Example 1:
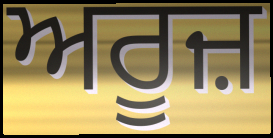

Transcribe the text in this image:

ਅਰੂਜ਼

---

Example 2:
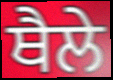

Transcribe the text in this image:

ਥੈਲੇ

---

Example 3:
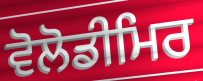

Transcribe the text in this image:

ਵੋਲੋਡੀਮਿਰ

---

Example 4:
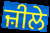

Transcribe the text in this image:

ਜ਼ੀਲੇ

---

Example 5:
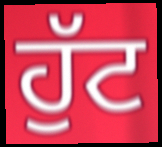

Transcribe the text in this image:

ਹੁੱਟ